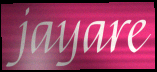
jayare